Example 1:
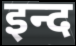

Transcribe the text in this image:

इन्द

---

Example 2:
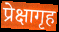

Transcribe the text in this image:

प्रेक्षागृह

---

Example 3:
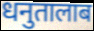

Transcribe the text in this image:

धनुतालाब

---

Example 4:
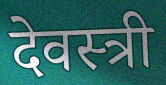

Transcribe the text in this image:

देवस्त्री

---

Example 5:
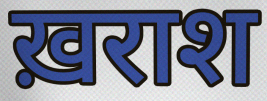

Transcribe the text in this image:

ख़राश